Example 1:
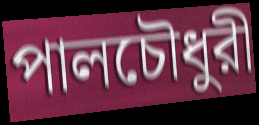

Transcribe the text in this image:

পালচৌধুরী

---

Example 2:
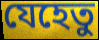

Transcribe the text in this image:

যেহেতু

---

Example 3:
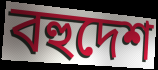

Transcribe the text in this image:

বহুদেশ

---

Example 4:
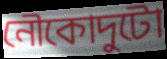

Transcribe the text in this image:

নৌকোদুটো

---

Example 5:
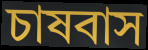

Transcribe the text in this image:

চাষবাস